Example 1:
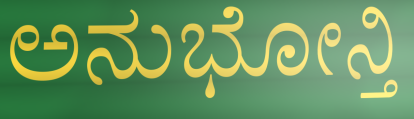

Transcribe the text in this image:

ಅನುಭೋನ್ತಿ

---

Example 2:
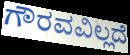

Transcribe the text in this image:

ಗೌರವವಿಲ್ಲದೆ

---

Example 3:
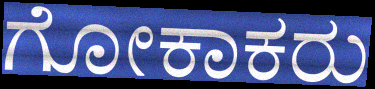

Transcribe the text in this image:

ಗೋಕಾಕರು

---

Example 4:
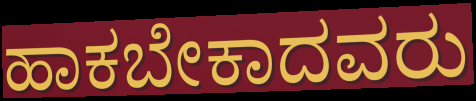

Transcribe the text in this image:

ಹಾಕಬೇಕಾದವರು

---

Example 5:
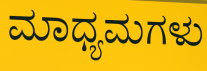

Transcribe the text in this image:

ಮಾಧ್ಯಮಗಳು